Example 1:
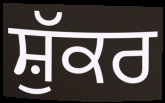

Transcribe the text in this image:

ਸ਼ੁੱਕਰ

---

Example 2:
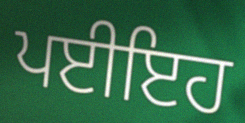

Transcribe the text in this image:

ਪਈਇਹ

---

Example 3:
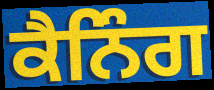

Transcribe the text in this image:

ਕੈਨਿੰਗ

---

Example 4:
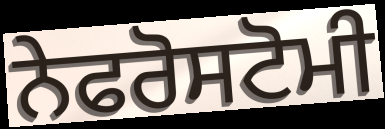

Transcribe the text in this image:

ਨੇਫਰੋਸਟੋਮੀ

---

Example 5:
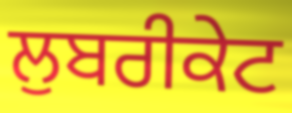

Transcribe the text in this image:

ਲੁਬਰੀਕੇਟ